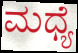
ಮಧ್ಯೆ